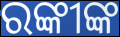
ରଙ୍କୀଙ୍କ